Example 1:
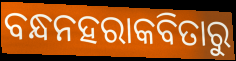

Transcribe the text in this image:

ବନ୍ଧନହରାକବିତାରୁ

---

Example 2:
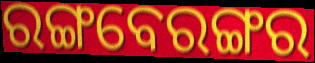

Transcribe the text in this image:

ରଙ୍ଗବେରଙ୍ଗର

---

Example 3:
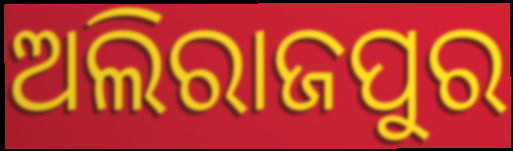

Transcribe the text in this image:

ଅଲିରାଜପୁର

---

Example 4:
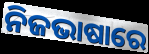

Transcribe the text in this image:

ନିଜଭାଷାରେ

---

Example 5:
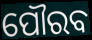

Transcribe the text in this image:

ପୌରବ